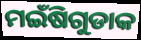
ମଇଁଷିଗୁଡାକ